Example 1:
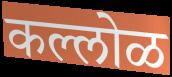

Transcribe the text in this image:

कल्लोळ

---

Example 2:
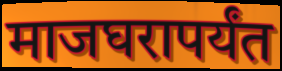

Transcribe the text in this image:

माजघरापर्यंत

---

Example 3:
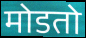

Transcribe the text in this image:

मोडतो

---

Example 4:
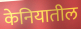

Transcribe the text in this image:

केनियातील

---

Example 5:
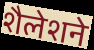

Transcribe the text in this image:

शैलेशने